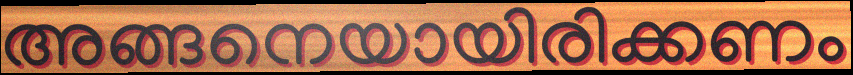
അങ്ങനെയായിരിക്കണം